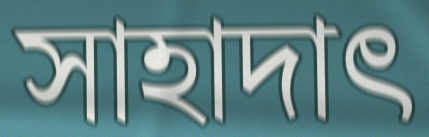
সাহাদাৎ